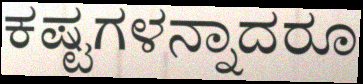
ಕಷ್ಟಗಳನ್ನಾದರೂ